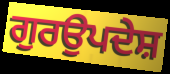
ਗੁਰਉਪਦੇਸ਼